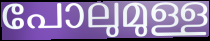
പോലുമുള്ള